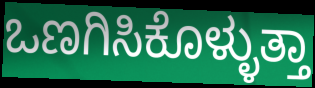
ಒಣಗಿಸಿಕೊಳ್ಳುತ್ತಾ